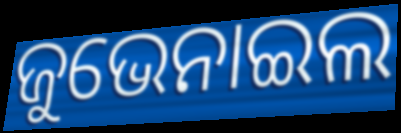
ଜୁଭେନାଇଲ